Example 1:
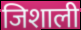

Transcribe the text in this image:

जिशाली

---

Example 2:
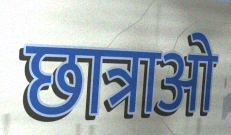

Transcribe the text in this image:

छात्राओ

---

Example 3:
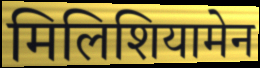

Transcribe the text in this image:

मिलिशियामेन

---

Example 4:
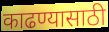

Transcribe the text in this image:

काढण्यासाठी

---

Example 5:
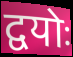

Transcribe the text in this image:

द्वयोः